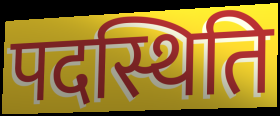
पदस्थिति